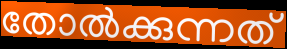
തോൽക്കുന്നത്